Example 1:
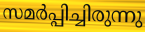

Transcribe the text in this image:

സമർപ്പിച്ചിരുന്നു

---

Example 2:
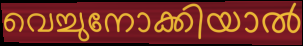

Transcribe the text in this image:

വെച്ചുനോക്കിയാൽ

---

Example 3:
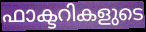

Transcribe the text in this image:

ഫാക്ടറികളുടെ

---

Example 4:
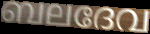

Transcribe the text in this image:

ബലദേവ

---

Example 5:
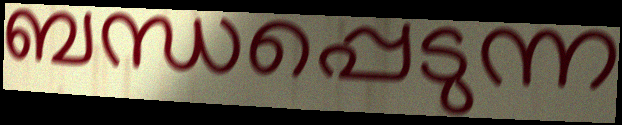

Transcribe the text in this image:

ബന്ധപ്പെടുന്ന